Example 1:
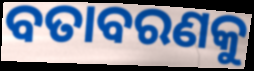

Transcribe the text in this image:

ବତାବରଣକୁ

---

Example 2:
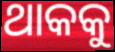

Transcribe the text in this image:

ଥାକକୁ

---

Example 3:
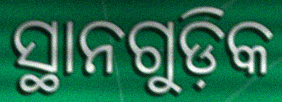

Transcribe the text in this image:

ସ୍ଥାନଗୁଡ଼ିକ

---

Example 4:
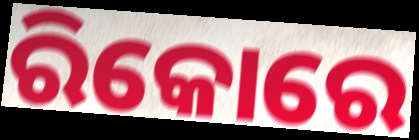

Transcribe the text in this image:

ରିକୋରେ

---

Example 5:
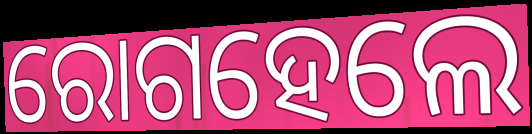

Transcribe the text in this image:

ରୋଗହେଲେ